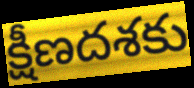
క్షీణదశకు